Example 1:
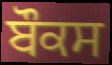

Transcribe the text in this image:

ਬੌਕਸ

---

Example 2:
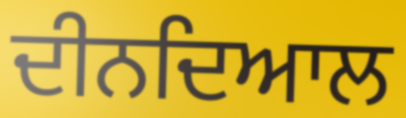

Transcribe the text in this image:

ਦੀਨਦਿਆਲ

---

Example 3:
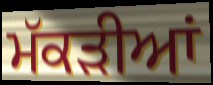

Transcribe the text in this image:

ਮੱਕੜੀਆਂ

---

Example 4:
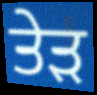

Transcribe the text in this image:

ਤੇੜ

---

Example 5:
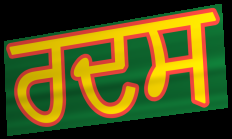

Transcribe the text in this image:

ਰਦਸ